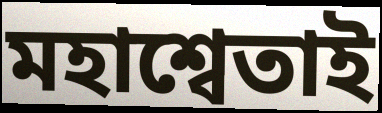
মহাশ্বেতাই